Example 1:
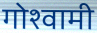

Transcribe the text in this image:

गोश्वामी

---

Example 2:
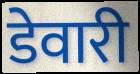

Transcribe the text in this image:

डेवारी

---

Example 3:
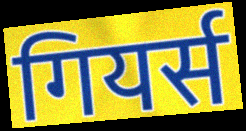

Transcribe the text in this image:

गियर्स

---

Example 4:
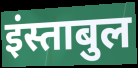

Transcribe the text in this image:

इंस्ताबुल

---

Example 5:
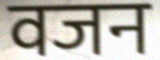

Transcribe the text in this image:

वजन